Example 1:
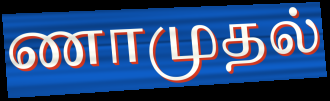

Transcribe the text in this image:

ணாமுதல்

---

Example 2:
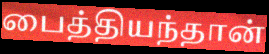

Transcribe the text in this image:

பைத்தியந்தான்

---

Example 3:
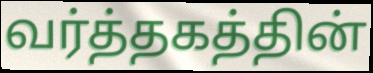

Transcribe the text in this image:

வர்த்தகத்தின்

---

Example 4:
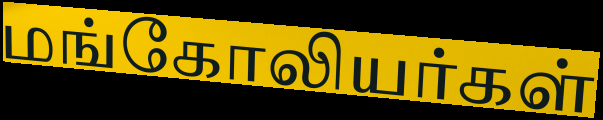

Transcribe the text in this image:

மங்கோலியர்கள்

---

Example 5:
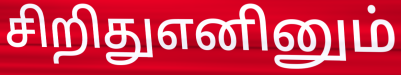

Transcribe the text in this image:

சிறிதுஎனினும்